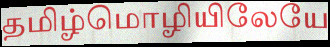
தமிழ்மொழியிலேயே